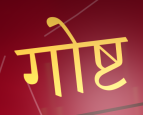
गोष्ट